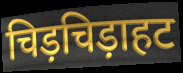
चिड़चिड़ाहट